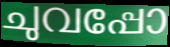
ചുവപ്പോ